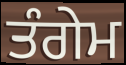
ਤੰਗੇਮ